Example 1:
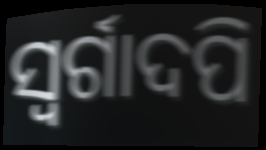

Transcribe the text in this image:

ସ୍ୱର୍ଗାଦପି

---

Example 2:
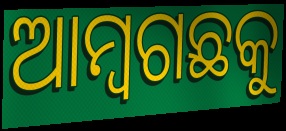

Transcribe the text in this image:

ଆମ୍ବଗଛକୁ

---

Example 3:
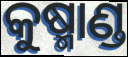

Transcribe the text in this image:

କୁଷ୍ମାଣ୍ଡ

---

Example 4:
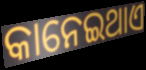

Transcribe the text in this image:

କାନେଇଥାଏ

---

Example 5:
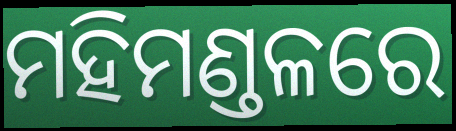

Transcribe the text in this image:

ମହିମଣ୍ଡଳରେ